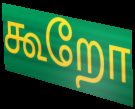
கூறோ